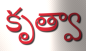
కృత్వా